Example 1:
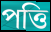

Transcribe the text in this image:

পত্তি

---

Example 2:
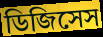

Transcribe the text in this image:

ডিজিসেস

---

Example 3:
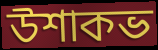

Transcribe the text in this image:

উশাকভ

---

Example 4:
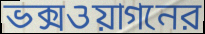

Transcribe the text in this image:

ভক্সওয়াগনের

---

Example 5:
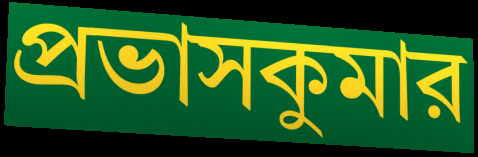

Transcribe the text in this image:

প্রভাসকুমার